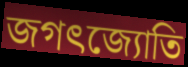
জগৎজ্যোতি